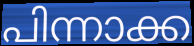
പിന്നാക്ക